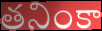
తనింకా